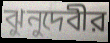
ঝুনুদেবীর